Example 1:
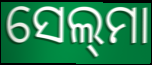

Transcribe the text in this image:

ସେଲ୍‌ମା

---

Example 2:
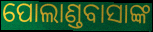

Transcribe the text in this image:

ପୋଲାଣ୍ଡବାସାଙ୍କ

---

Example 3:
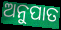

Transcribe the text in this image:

ଅନୁପାତ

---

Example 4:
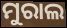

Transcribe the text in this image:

ମୁରାଲ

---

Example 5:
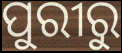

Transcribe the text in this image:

ପୁରୀରୁ